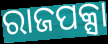
ରାଜପକ୍ସା